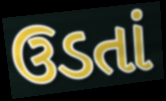
ઉડતાં